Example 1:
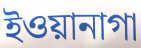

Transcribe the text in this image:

ইওয়ানাগা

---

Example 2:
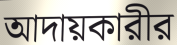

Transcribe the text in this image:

আদায়কারীর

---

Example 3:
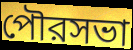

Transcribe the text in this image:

পৌরসভা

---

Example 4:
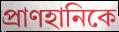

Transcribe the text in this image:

প্রাণহানিকে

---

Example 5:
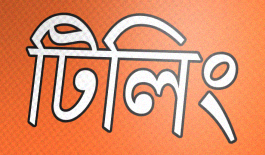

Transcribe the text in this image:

টিলিং